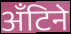
अँटिने